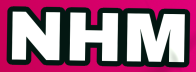
NHM